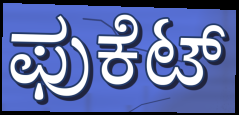
ಫುಕೆಟ್